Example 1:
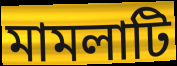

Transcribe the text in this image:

মামলাটি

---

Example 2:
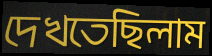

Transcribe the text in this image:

দেখতেছিলাম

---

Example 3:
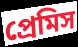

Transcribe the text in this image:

প্রেমিস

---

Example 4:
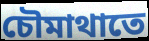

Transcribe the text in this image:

চৌমাথাতে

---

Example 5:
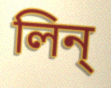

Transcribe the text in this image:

লিন্